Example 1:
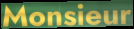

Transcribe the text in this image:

Monsieur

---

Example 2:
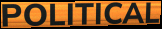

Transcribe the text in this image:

POLITICAL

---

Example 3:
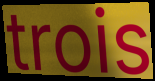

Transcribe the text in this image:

trois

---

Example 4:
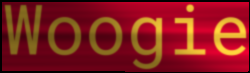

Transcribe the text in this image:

Woogie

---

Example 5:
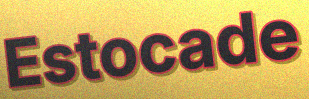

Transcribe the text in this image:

Estocade